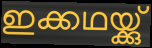
ഇക്കഥയ്ക്കു്